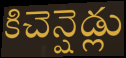
కిచెన్షెడ్లు